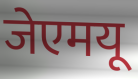
जेएमयू